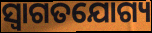
ସ୍ବାଗତଯୋଗ୍ୟ